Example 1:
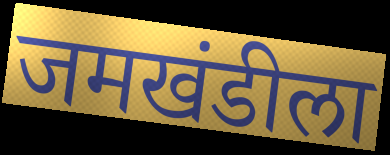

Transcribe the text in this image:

जमखंडीला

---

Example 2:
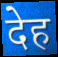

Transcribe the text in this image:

देह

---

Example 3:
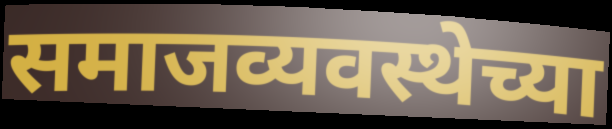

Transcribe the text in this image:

समाजव्यवस्थेच्या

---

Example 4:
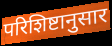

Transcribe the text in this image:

परिशिष्टानुसार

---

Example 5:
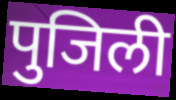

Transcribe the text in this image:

पुजिली